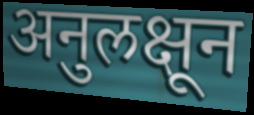
अनुलक्षून